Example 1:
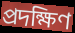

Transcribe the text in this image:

প্ৰদক্ষিণ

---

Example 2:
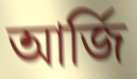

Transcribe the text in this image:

আৰ্জি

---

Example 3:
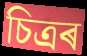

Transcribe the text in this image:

চিত্ৰৰ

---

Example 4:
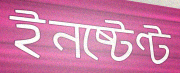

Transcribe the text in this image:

ইনষ্টেণ্ট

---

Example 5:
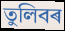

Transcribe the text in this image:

তুলিবৰ